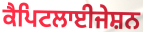
ਕੈਪਿਟਲਾਈਜੇਸ਼ਨ